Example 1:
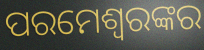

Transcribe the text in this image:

ପରମେଶ୍ଵରଙ୍କର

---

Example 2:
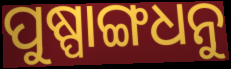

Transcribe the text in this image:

ପୁଷ୍ପାଙ୍ଗଧନୁ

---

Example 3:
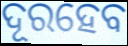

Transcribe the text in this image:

ଦୂରହେବ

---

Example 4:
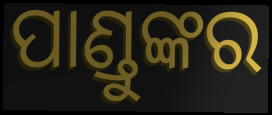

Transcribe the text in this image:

ପାଣ୍ଡୁଙ୍କର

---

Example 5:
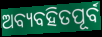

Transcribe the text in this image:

ଅବ୍ୟବହିତପୂର୍ବ